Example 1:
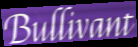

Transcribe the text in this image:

Bullivant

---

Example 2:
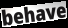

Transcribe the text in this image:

behave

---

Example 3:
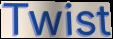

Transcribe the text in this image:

Twist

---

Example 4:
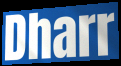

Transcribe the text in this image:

Dharr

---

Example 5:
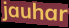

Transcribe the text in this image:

jauhar